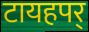
टायहपर्